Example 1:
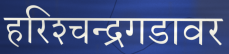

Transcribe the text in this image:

हरिश्चन्द्रगडावर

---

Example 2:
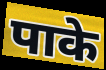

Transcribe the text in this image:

पाके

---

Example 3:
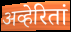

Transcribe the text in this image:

अव्हेरितां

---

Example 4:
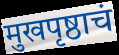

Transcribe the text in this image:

मुखपृष्ठाचं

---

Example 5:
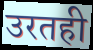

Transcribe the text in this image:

उरतही